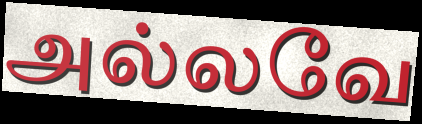
அல்லவே